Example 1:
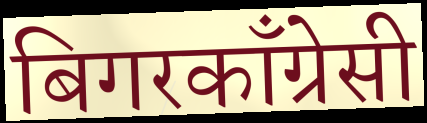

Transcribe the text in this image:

बिगरकाँग्रेसी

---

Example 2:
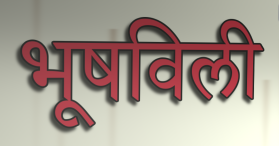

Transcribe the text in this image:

भूषविली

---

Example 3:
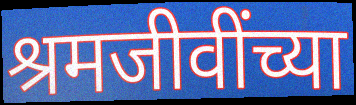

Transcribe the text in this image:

श्रमजीवींच्या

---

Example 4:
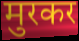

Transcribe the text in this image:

मुरकर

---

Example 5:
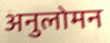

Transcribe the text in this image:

अनुलोमन